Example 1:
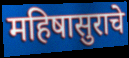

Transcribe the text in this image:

महिषासुराचे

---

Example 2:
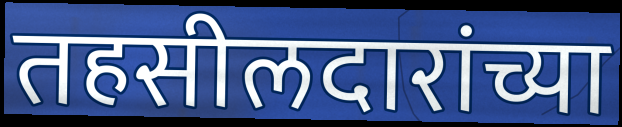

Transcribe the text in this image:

तहसीलदारांच्या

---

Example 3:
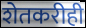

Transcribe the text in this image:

शेतकरीही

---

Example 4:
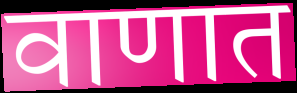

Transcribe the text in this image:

वाणात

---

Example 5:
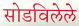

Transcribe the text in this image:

सोडविलेले